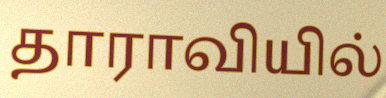
தாராவியில்